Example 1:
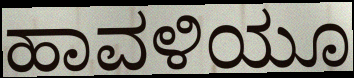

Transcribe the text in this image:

ಹಾವಳಿಯೂ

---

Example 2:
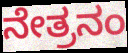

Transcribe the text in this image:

ನೇತ್ರನಂ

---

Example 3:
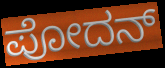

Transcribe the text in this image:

ಪೋದನ್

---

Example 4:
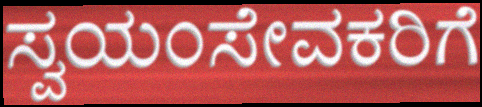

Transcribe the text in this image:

ಸ್ವಯಂಸೇವಕರಿಗೆ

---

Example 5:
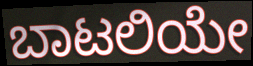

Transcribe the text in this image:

ಬಾಟಲಿಯೇ